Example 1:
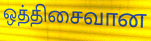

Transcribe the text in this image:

ஒத்திசைவான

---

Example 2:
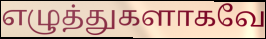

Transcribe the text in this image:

எழுத்துகளாகவே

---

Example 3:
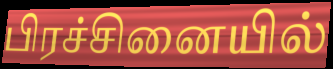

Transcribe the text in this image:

பிரச்சினையில்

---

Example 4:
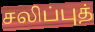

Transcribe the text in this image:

சலிப்புத்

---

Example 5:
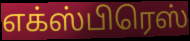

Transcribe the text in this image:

எக்ஸ்பிரெஸ்